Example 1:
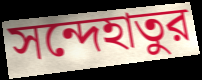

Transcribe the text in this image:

সন্দেহাতুর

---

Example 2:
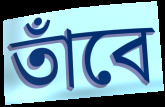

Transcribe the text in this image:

তাঁবে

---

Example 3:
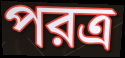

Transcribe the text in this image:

পরত্র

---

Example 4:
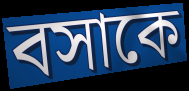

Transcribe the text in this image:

বসাকে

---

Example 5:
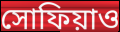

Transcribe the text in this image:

সোফিয়াও